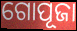
ଗୋପୂଜା